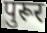
पुरूर